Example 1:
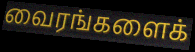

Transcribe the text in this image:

வைரங்களைக்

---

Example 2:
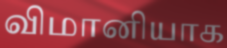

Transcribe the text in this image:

விமானியாக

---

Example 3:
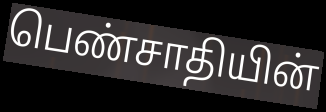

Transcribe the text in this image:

பெண்சாதியின்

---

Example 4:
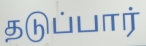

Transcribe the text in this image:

தடுப்பார்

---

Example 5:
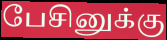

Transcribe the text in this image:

பேசினுக்கு